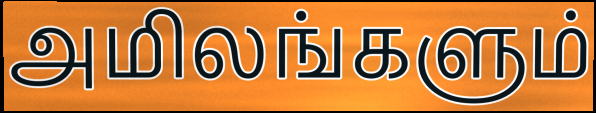
அமிலங்களும்